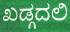
ಖಡ್ಗದಲಿ